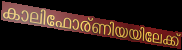
കാലിഫോര്ണിയയിലേക്ക്